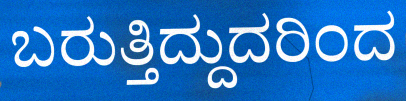
ಬರುತ್ತಿದ್ದುದರಿಂದ